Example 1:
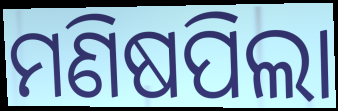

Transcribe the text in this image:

ମଣିଷପିଲା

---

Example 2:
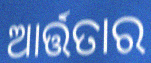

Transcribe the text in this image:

ଆର୍ତ୍ତତାର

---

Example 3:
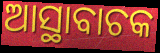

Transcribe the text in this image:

ଆସ୍ଥାବାଚକ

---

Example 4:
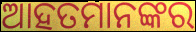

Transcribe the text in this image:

ଆହତମାନଙ୍କର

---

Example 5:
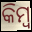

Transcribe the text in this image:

କିମ୍ବ